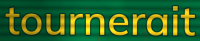
tournerait